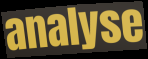
analyse